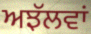
ਅਝੱਲਵਾਂ